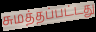
சுமத்தப்பட்டது